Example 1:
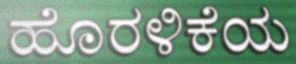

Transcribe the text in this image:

ಹೊರಳಿಕೆಯ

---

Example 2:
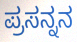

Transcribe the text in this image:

ಪ್ರಸನ್ನನ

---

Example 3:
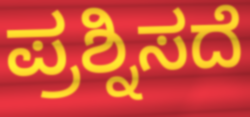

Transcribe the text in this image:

ಪ್ರಶ್ನಿಸದೆ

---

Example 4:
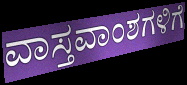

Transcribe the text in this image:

ವಾಸ್ತವಾಂಶಗಳಿಗೆ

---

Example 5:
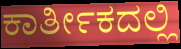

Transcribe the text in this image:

ಕಾರ್ತೀಕದಲ್ಲಿ